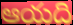
ఆయది